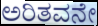
ಅರಿತವನೇ